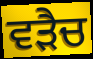
ਵੜੈਚ